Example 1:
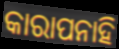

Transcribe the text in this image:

କାରାପନାହି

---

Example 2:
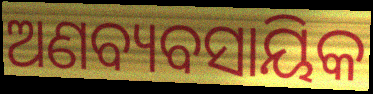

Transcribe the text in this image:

ଅଣବ୍ୟବସାୟିକ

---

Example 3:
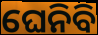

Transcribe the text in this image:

ଘେନିବି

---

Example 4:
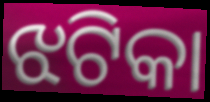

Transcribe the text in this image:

ଝଟିକା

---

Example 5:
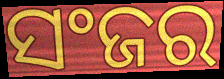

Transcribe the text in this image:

ସଂଜର